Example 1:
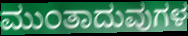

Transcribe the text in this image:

ಮುಂತಾದುವುಗಳ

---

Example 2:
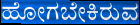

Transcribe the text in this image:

ಹೋಗಬೇಕಿರುವ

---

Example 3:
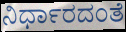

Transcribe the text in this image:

ನಿರ್ಧಾರದಂತೆ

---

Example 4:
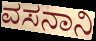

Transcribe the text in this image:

ವಸನಾನಿ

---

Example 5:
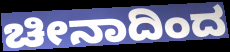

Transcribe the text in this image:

ಚೀನಾದಿಂದ